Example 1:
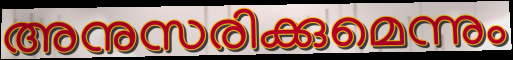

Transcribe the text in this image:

അനുസരിക്കുമെന്നും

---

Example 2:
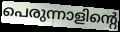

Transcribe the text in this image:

പെരുന്നാളിന്റെ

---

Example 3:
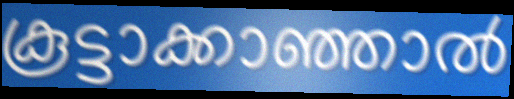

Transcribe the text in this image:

കൂട്ടാക്കാഞ്ഞാൽ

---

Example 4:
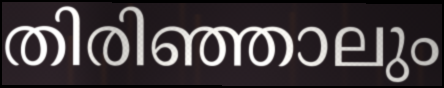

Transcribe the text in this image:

തിരിഞ്ഞാലും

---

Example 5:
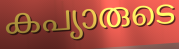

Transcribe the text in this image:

കപ്യാരുടെ